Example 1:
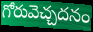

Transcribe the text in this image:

గోరువెచ్చదనం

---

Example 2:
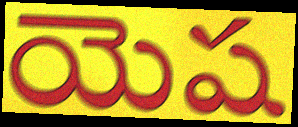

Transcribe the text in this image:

యెష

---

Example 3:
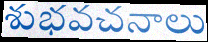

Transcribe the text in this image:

శుభవచనాలు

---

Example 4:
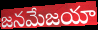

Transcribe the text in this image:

జనమేజయా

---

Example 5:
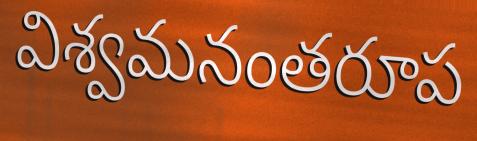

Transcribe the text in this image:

విశ్వమనంతరూప